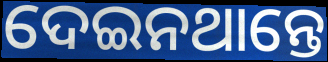
ଦେଇନଥାନ୍ତେ